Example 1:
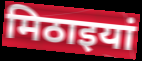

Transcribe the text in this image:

मिठाइयां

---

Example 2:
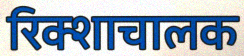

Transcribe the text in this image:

रिक्शाचालक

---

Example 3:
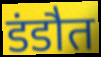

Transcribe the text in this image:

डंडौत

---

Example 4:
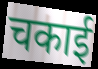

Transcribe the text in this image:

चकाई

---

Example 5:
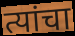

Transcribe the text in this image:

त्यांचा